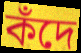
কঁদে